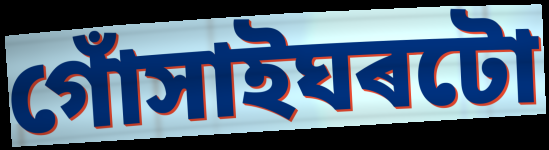
গোঁসাইঘৰটো